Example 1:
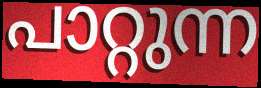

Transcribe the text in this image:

പാറ്റുന്ന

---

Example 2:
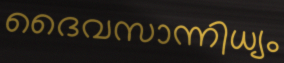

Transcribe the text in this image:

ദൈവസാന്നിധ്യം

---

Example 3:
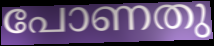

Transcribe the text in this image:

പോണതു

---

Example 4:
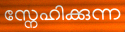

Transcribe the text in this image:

സ്നേഹിക്കുന്ന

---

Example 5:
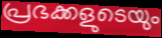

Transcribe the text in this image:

പ്രഭക്കളുടെയും